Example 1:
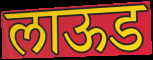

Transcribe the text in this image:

लाऊड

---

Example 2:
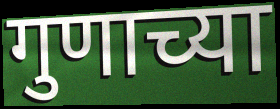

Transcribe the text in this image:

गुणाच्या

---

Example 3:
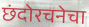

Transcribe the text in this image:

छंदोरचनेचा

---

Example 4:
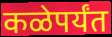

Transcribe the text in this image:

कळेपर्यंत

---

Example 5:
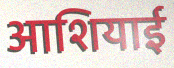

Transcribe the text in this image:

आशियाई